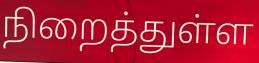
நிறைத்துள்ள